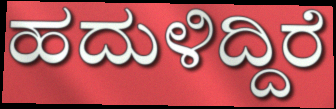
ಹದುಳಿದ್ದಿರೆ